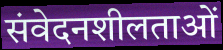
संवेदनशीलताओं